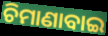
ଚିମାଣାବାଇ